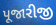
પૂજારીજી